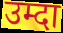
उम्दा